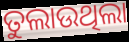
ତୁଲାଉଥିଲା